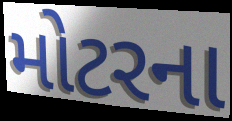
મોટરના